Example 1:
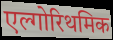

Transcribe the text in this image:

एल्गोरिथमिक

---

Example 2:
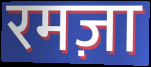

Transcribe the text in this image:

रमज़ा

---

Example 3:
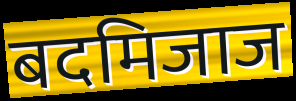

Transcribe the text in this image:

बदमिजाज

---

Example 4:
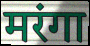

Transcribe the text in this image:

मरंगा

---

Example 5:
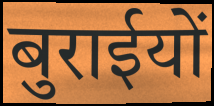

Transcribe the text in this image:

बुराईयों